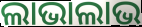
ଲାଭାଲାଭ